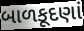
બાળકૂદણાં